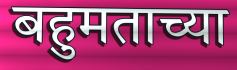
बहुमताच्या